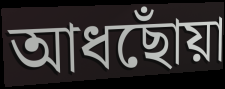
আধছোঁয়া